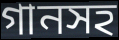
গানসহ